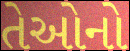
તેઓનો